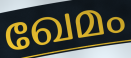
ഖേമം